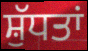
ਸ਼ੁੱਧਤਾਂ